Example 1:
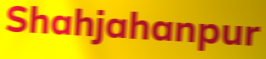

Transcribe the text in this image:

Shahjahanpur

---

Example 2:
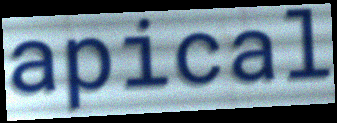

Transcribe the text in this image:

apical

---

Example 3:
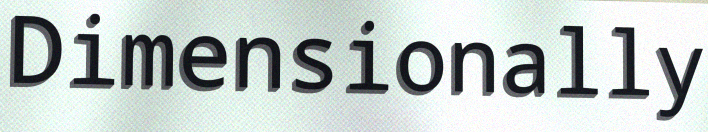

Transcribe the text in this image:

Dimensionally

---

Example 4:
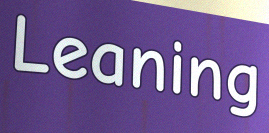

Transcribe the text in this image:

Leaning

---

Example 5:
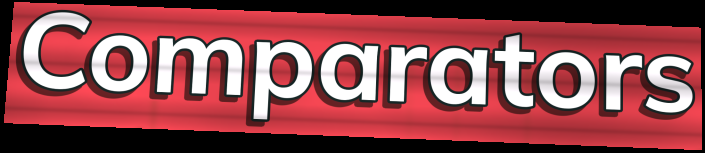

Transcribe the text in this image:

Comparators